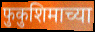
फुकुशिमाच्या